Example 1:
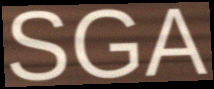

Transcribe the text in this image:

SGA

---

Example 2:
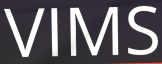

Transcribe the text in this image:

VIMS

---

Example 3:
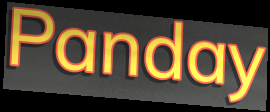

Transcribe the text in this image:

Panday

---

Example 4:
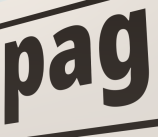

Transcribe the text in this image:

pag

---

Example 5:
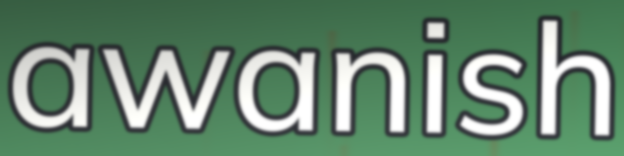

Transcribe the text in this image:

awanish